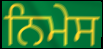
ਨਿਮੇਸ